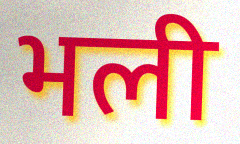
भली